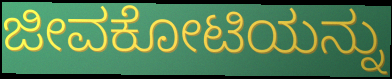
ಜೀವಕೋಟಿಯನ್ನು